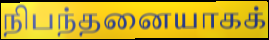
நிபந்தனையாகக்